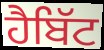
ਹੈਬਿੱਟ